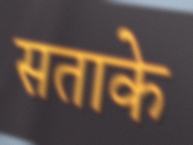
सताके